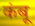
कंबू